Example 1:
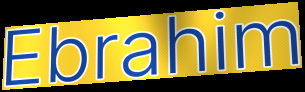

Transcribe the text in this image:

Ebrahim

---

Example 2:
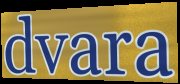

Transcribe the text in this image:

dvara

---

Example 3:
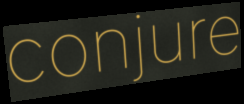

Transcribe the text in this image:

conjure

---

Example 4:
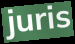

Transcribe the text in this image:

juris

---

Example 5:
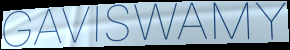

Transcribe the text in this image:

GAVISWAMY